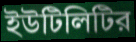
ইউটিলিটির